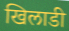
खिलाडी